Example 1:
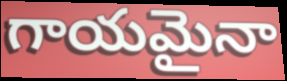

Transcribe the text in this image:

గాయమైనా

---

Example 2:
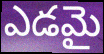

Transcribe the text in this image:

ఎడమై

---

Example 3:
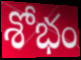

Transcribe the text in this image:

శోభం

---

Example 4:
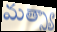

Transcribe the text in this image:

మత్స్యా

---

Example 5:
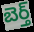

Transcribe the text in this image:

బెర్త్